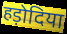
हड़ोदिया